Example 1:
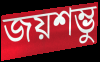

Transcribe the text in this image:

জয়শম্ভু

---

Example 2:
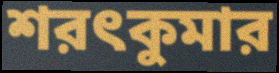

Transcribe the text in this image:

শরৎকুমার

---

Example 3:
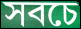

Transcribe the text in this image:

সবচে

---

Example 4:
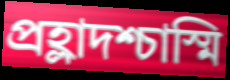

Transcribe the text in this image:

প্রহ্লাদশ্চাস্মি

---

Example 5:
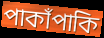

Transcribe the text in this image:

পাকাঁপাকি